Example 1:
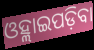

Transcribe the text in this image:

ଓହ୍ଲାଇପଡ଼ିବା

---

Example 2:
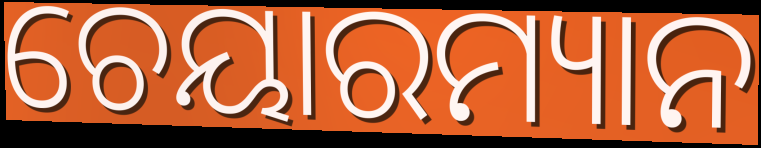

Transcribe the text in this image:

ଚେୟାରମ୍ୟାନ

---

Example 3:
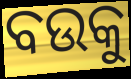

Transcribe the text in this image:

ବଉକୁ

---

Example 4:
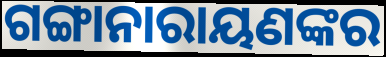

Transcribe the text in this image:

ଗଙ୍ଗାନାରାୟଣଙ୍କର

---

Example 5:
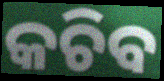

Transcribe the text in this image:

କଚିବ